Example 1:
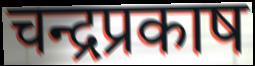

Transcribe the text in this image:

चन्द्रप्रकाष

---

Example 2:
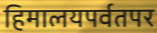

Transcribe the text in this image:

हिमालयपर्वतपर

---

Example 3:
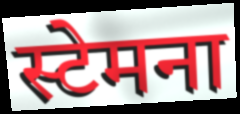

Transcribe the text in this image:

स्टेमना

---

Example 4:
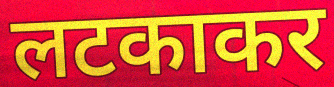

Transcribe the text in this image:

लटकाकर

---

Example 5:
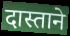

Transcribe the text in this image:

दास्ताने